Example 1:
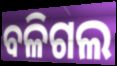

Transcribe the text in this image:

ବଳିଗଲ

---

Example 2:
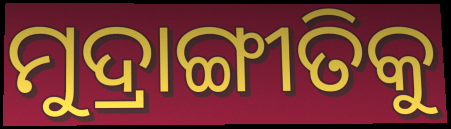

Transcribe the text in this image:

ମୁଦ୍ରାଙ୍ଗୀତିକୁ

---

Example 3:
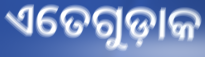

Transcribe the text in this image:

ଏତେଗୁଡ଼ାକ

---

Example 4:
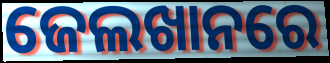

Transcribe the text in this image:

ଜେଲଖାନରେ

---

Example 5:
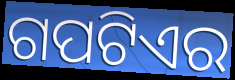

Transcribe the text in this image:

ଗପଟିଏର